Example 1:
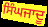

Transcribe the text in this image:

ਸਿੰਘਜਾਦੂ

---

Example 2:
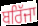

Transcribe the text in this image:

ਬਰਿੱਜਾ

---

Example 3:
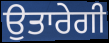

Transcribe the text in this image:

ਉਤਾਰੇਗੀ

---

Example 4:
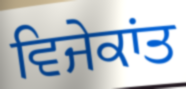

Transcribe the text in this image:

ਵਿਜੇਕਾਂਤ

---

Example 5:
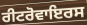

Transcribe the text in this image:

ਰੀਟਰੋਵਾਇਰਸ